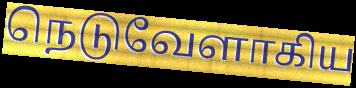
நெடுவேளாகிய